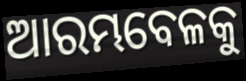
ଆରମ୍ଭବେଳକୁ